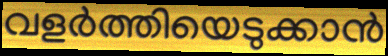
വളർത്തിയെടുക്കാൻ